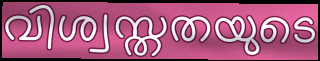
വിശ്വസ്തതയുടെ